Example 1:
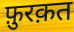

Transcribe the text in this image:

फ़ुरक़त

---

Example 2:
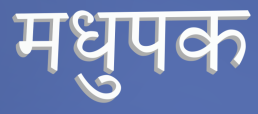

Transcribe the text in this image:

मधुपक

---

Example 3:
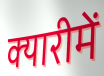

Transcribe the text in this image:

क्यारीमें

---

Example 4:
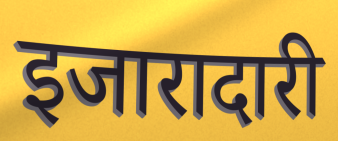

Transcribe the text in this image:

इजारादारी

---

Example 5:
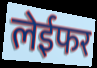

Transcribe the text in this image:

लेईफर